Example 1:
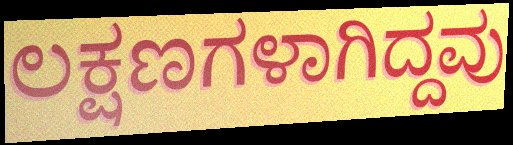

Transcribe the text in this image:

ಲಕ್ಷಣಗಳಾಗಿದ್ದವು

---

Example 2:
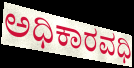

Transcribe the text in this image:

ಅಧಿಕಾರವಧಿ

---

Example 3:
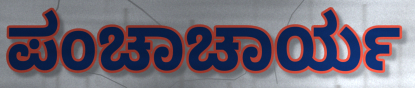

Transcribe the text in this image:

ಪಂಚಾಚಾರ್ಯ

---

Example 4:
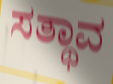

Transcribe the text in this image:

ಸತ್ಥಾವ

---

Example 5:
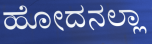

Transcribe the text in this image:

ಹೋದನಲ್ಲಾ